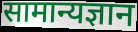
सामान्यज्ञान